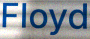
Floyd